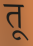
तू